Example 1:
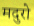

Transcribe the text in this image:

मदुरो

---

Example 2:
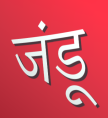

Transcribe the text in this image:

जंडू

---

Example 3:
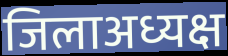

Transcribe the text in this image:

जिलाअध्यक्ष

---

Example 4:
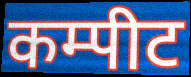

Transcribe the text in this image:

कम्पीट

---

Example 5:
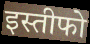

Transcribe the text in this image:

इस्तीफो